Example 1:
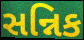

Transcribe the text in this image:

સન્નિક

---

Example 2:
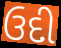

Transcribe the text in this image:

ઉદી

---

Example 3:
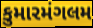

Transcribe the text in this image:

કુમારમંગલમ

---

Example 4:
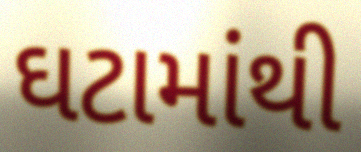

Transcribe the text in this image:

ઘટામાંથી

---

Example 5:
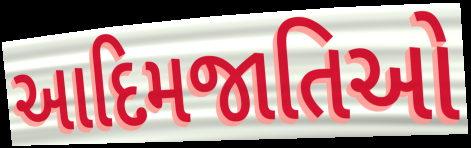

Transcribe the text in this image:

આદિમજાતિઓ